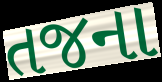
તજના